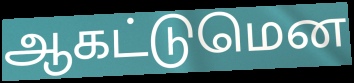
ஆகட்டுமென